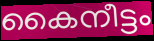
കൈനീട്ടം